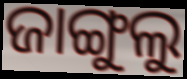
ଜାଙ୍ଗୁଲୁ